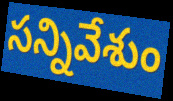
సన్నివేశుం